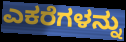
ಎಕರೆಗಳನ್ನು